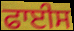
ਫਾਈਸ